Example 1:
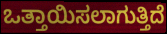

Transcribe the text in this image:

ಒತ್ತಾಯಿಸಲಾಗುತ್ತಿದೆ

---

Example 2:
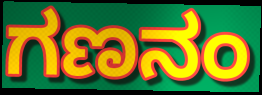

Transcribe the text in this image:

ಗಣನಂ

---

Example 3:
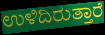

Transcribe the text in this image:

ಉಳಿದಿರುತ್ತಾರೆ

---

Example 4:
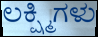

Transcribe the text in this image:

ಲಕ್ಷ್ಮಿಗಳು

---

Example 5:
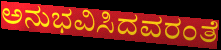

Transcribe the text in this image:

ಅನುಭವಿಸಿದವರಂತೆ